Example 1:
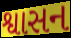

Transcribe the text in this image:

શ્વાસન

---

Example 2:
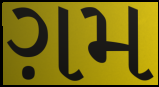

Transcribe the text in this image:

ગ઼મ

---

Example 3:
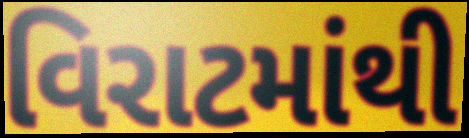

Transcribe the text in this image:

વિરાટમાંથી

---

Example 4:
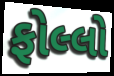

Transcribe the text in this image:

ફોલ્લો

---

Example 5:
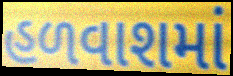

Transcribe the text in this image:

હળવાશમાં